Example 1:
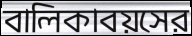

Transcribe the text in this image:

বালিকাবয়সের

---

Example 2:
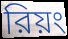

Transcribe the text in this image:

রিয়ং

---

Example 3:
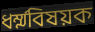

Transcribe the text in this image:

ধর্ম্মবিষয়ক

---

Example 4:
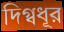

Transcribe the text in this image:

দিগ্বধূর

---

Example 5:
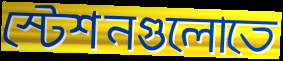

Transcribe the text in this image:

স্টেশনগুলোতে